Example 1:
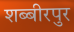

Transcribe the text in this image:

शब्‍बीरपुर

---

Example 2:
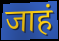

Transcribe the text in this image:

जाहं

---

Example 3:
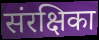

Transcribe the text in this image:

संरक्षिका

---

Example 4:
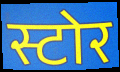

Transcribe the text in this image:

स्‍टोर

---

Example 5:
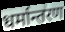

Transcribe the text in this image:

धर्मान्तरण